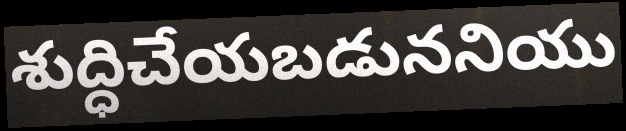
శుద్ధిచేయబడుననియు